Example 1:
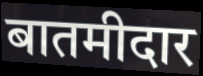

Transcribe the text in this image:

बातमीदार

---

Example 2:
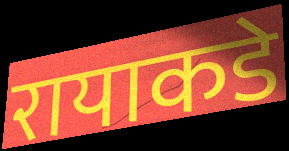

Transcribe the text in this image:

रायाकडे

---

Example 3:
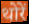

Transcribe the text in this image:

थोरें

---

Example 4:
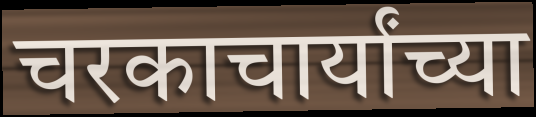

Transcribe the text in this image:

चरकाचार्यांच्या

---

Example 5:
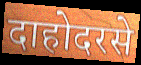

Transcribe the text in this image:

दाहोदरसे